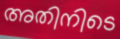
അതിനിടെ